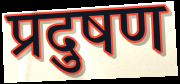
प्रदुषण